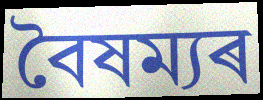
বৈষম্যৰ